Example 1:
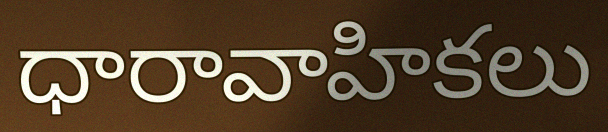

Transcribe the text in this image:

ధారావాహికలు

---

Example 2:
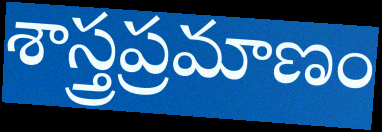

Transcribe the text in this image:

శాస్త్రప్రమాణం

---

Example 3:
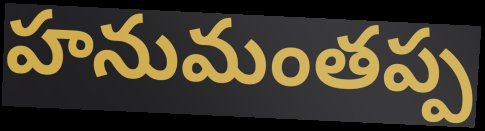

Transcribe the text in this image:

హనుమంతప్ప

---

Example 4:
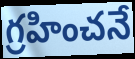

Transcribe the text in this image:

గ్రహించనే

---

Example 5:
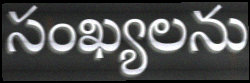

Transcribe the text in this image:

సంఖ్యలను